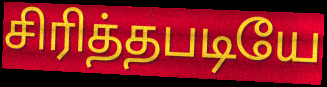
சிரித்தபடியே